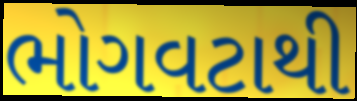
ભોગવટાથી